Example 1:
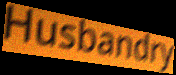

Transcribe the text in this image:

Husbandry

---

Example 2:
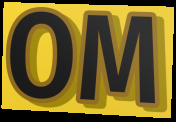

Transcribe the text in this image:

OM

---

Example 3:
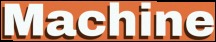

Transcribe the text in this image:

Machine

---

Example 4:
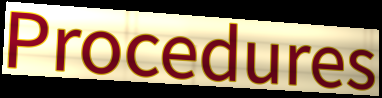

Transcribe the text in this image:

Procedures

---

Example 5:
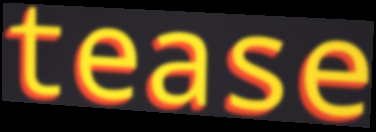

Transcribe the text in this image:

tease